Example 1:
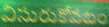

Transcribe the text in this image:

విసురుకోవటం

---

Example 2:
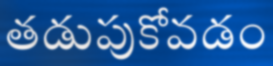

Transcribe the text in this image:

తడుపుకోవడం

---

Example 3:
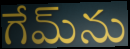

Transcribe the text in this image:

గేమ్‌ను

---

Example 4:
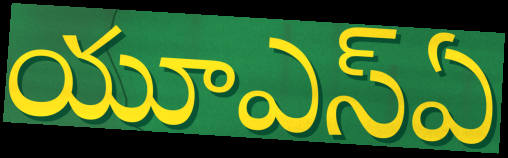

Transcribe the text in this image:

యూఎస్ఏ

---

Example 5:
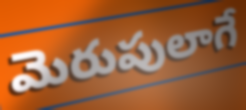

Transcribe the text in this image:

మెరుపులాగే